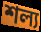
শল্য